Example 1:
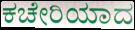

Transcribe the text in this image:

ಕಚೇರಿಯಾದ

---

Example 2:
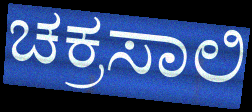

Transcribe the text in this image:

ಚಕ್ರಸಾಲಿ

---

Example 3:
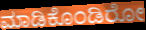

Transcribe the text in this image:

ಮಾಡಿಕೊಂಡಿರೋ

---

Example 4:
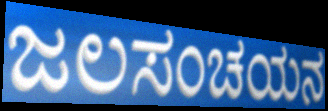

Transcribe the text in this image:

ಜಲಸಂಚಯನ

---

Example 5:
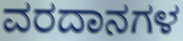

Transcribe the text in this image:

ವರದಾನಗಳ